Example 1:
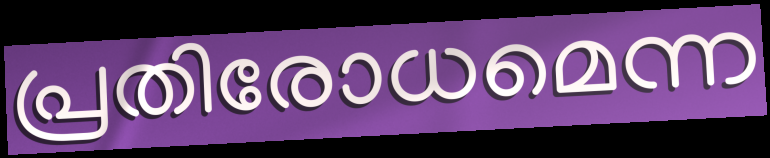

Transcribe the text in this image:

പ്രതിരോധമെന്ന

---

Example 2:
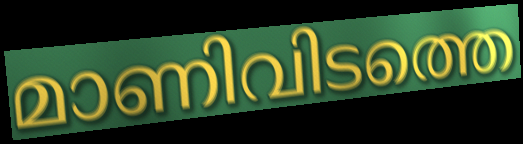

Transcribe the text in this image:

മാണിവിടത്തെ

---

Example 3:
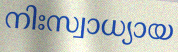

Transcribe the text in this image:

നിഃസ്വാധ്യായ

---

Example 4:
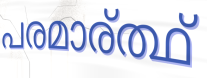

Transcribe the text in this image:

പരമാര്ത്ഥ്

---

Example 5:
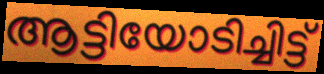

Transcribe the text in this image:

ആട്ടിയോടിച്ചിട്ട്